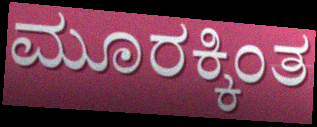
ಮೂರಕ್ಕಿಂತ